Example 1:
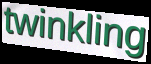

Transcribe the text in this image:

twinkling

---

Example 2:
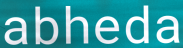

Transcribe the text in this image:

abheda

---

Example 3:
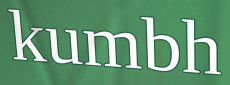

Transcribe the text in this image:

kumbh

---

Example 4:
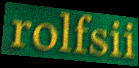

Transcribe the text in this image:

rolfsii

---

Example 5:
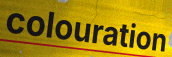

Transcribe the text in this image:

colouration